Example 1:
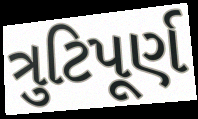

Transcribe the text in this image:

ત્રુટિપૂર્ણ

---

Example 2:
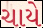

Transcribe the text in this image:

ચાયે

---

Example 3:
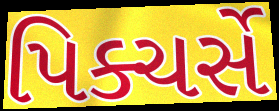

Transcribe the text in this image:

પિક્ચર્સે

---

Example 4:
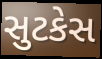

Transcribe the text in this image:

સુટકેસ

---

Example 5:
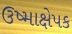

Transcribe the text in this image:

ઉષ્માક્ષેપક